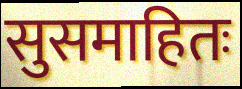
सुसमाहितः